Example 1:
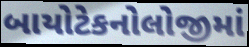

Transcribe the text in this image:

બાયોટેકનોલોજીમાં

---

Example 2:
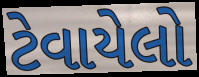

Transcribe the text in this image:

ટેવાયેલો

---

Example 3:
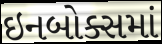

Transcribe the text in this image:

ઇનબોક્સમાં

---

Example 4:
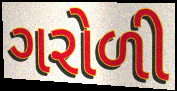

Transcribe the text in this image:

ગરોળી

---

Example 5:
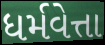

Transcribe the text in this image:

ધર્મવેત્તા